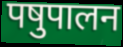
पषुपालन